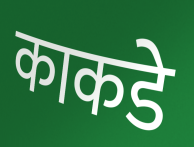
काकडे